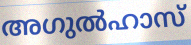
അഗുൽഹാസ്